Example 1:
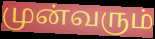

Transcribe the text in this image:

முன்வரும்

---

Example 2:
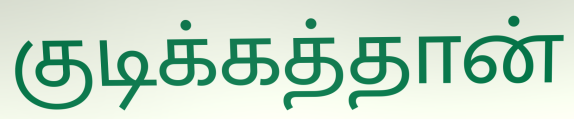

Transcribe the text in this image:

குடிக்கத்தான்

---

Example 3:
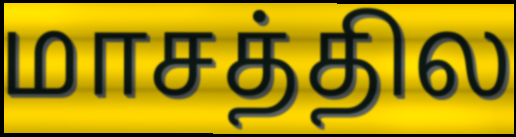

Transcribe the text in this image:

மாசத்தில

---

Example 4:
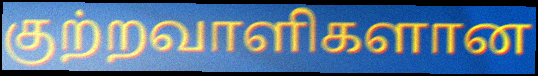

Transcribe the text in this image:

குற்றவாளிகளான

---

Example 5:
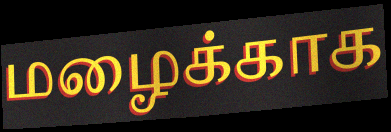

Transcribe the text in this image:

மழைக்காக